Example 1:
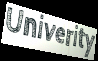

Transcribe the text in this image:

Univerity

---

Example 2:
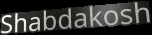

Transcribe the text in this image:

Shabdakosh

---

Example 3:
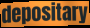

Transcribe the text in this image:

depositary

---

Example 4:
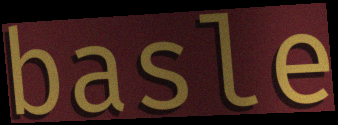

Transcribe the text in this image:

basle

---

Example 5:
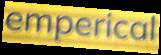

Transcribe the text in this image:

emperical